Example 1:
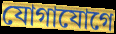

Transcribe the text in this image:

যোগাযোগে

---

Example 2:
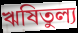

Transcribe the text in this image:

ঋষিতুল্য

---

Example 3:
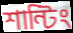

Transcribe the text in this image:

শান্টিং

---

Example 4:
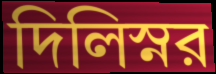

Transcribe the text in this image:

দিলিস্নর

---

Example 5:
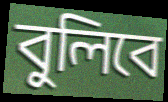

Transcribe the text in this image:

বুলিবে